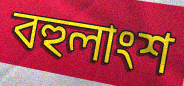
বহুলাংশ